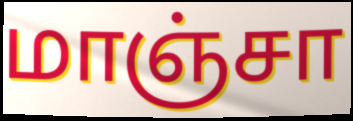
மாஞ்சா